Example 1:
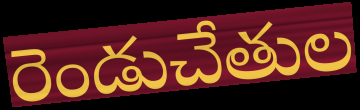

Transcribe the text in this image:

రెండుచేతుల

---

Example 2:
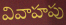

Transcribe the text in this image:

వివాహపు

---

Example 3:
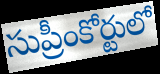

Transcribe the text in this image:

సుప్రీంకోర్టులో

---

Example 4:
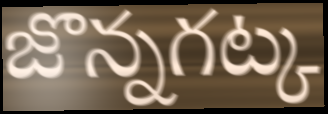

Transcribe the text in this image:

జొన్నగట్క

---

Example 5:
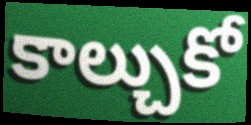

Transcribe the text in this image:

కాల్చుకో